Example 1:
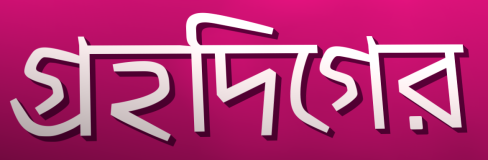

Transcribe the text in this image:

গ্রহদিগের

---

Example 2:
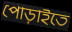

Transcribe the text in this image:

পোড়াইতে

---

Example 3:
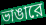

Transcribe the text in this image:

ভাঙারে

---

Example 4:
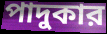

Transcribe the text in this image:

পাদুকার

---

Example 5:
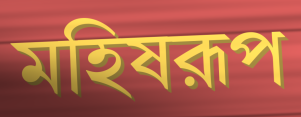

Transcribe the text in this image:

মহিষরূপ